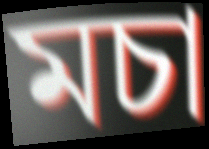
মচা